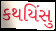
કથયિંસુ